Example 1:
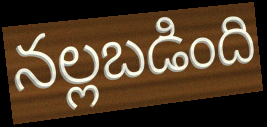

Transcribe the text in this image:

నల్లబడింది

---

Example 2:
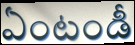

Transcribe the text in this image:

ఏంటండీ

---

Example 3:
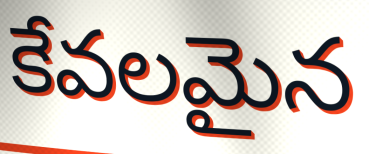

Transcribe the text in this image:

కేవలమైన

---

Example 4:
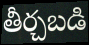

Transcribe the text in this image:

తీర్చబడి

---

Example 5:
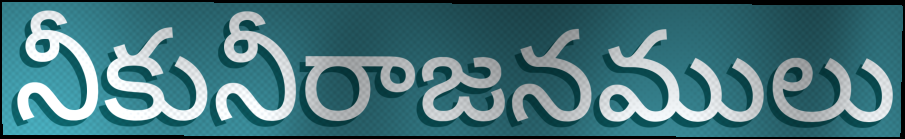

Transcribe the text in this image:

నీకునీరాజనములు